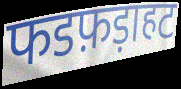
फडफ़ड़ाहट